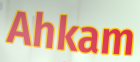
Ahkam